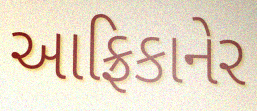
આફ્રિકાનેર